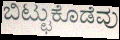
ಬಿಟ್ಟುಕೊಡೆವು